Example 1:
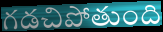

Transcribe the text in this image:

గడచిపోతుంది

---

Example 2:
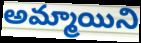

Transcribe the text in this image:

అమ్మాయిని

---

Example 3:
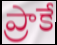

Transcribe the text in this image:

ప్రాకే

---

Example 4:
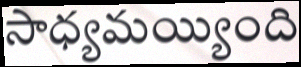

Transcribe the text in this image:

సాధ్యమయ్యింది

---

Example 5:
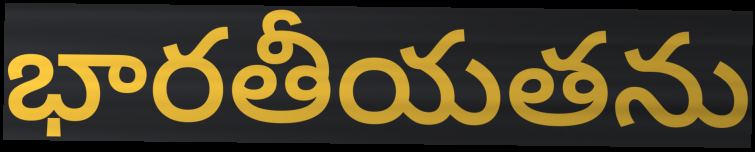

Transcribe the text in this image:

భారతీయతను